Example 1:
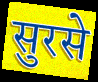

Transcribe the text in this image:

सुरसे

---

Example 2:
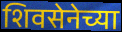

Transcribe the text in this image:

शिवसेनेच्या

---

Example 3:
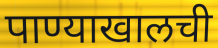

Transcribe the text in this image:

पाण्याखालची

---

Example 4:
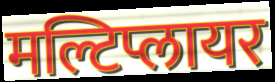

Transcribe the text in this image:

मल्टिप्लायर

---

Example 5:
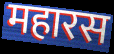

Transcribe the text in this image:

महारस